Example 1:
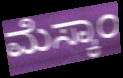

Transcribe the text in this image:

ಮೆಸ್ಕಾಂ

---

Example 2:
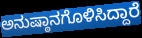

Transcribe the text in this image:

ಅನುಷ್ಠಾನಗೊಳಿಸಿದ್ದಾರೆ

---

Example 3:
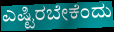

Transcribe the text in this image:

ಎಷ್ಟಿರಬೇಕೆಂದು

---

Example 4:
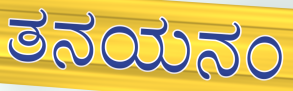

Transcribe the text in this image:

ತನಯನಂ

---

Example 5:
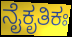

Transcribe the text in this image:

ನೈಕೃತಿಕಃ